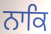
ਨਾਕਿ